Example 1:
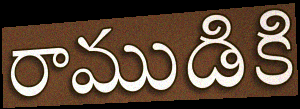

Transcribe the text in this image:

రాముడికి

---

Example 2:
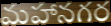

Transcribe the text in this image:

మహానగర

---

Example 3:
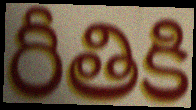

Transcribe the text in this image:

రీతికి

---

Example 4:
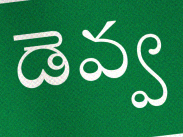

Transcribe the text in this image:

డెవ్వ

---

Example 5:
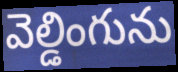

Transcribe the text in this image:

వెల్డింగును